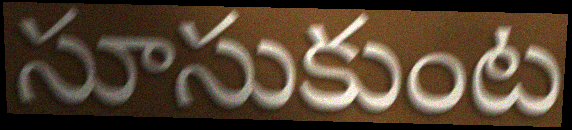
సూసుకుంట